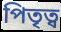
পিতৃত্ব